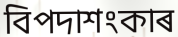
বিপদাশংকাৰ